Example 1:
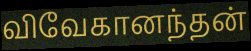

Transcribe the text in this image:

விவேகானந்தன்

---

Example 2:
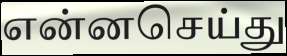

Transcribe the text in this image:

என்னசெய்து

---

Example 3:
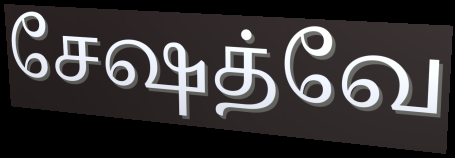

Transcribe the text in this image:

சேஷத்வே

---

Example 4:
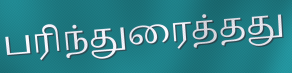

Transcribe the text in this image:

பரிந்துரைத்தது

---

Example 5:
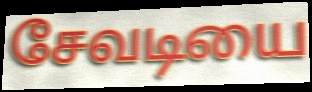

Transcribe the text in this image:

சேவடியை